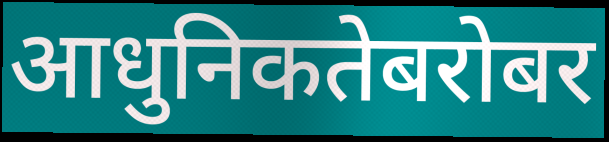
आधुनिकतेबरोबर